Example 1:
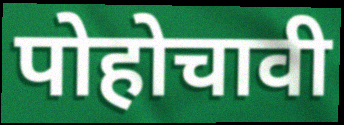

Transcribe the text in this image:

पोहोचावी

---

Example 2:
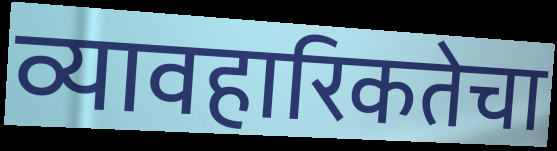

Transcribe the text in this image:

व्यावहारिकतेचा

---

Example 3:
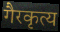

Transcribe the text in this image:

गैरकृत्य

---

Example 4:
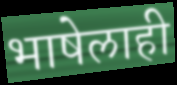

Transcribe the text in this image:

भाषेलाही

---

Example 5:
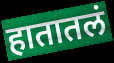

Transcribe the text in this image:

हातातलं